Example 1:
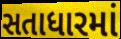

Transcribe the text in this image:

સતાધારમાં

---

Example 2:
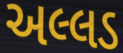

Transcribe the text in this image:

અલ્લડ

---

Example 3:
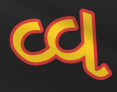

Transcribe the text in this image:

વ્વ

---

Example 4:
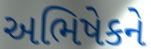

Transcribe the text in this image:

અભિષેકને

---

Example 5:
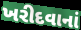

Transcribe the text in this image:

ખરીદવાનાં